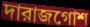
দারাজগোশ